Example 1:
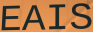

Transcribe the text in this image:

EAIS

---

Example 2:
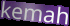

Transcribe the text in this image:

kemah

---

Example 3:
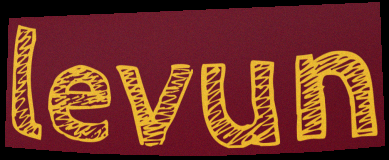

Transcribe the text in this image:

levun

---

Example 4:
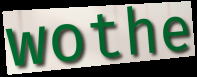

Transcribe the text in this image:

wothe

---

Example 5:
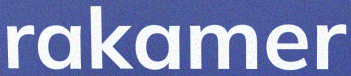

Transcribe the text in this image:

rakamer